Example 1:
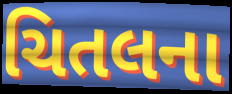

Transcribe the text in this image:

ચિતલના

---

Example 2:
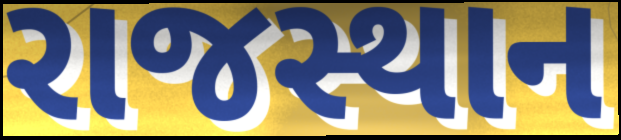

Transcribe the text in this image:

રાજસ્થાન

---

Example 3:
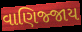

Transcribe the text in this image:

વાણિજ્જાય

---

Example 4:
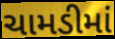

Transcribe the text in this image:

ચામડીમાં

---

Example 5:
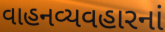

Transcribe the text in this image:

વાહનવ્યવહારનાં